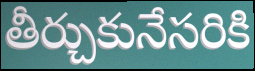
తీర్చుకునేసరికి